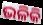
ଭଳିକି